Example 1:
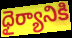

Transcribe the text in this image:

ధైర్యానికి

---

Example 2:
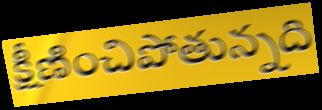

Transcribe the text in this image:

క్షీణించిపోతున్నది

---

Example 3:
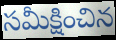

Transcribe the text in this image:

సమీక్షించిన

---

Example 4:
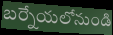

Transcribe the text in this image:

బర్నేయలోనుండి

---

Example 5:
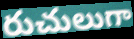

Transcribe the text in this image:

రుచులుగా